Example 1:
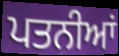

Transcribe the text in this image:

ਪਤਨੀਆਂ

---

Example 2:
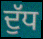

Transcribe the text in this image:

ਦੁੱਧ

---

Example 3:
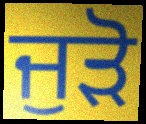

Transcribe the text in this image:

ਜੁੜੋ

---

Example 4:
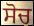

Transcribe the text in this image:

ਸੋਚ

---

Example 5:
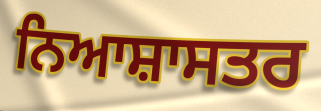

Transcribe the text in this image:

ਨਿਆਸ਼ਾਸਤਰ